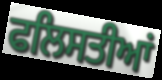
ਫਲਿਸਤੀਆਂ